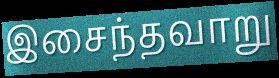
இசைந்தவாறு